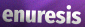
enuresis